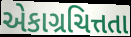
એકાગ્રચિત્તતા